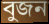
বুজন